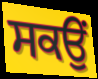
ਸਕਉਂ